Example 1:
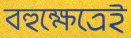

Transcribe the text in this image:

বহুক্ষেত্রেই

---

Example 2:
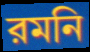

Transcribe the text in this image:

রমনি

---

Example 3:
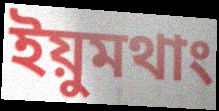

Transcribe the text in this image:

ইয়ুমথাং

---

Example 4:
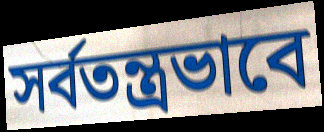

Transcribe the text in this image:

সর্বতন্ত্রভাবে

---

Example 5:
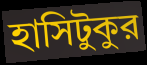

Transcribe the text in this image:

হাসিটুকুর